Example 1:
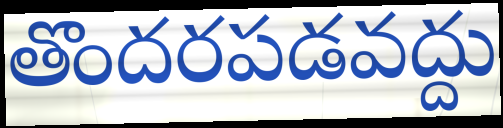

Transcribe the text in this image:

తొందరపడవద్దు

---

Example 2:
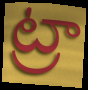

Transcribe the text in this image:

ట్రా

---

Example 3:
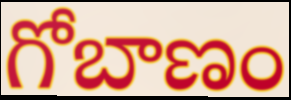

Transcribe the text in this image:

గోబాణం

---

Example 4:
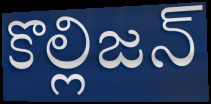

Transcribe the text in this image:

కొల్లిజన్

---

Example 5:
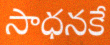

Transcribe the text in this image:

సాధనకే